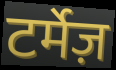
टर्मेज़